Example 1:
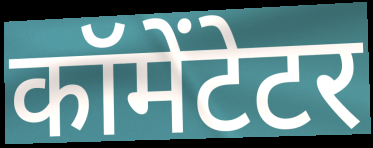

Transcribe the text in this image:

कॉमेंटेटर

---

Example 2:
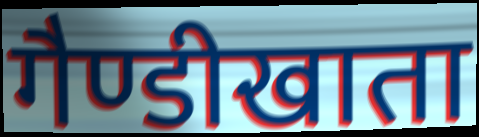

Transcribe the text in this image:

गैण्डीखाता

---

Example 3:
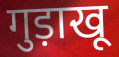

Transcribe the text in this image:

गुड़ाखू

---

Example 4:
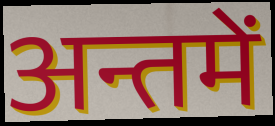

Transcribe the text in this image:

अन्तमें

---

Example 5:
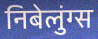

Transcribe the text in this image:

निबेलुंग्स